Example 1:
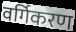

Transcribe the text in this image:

वर्गिकरण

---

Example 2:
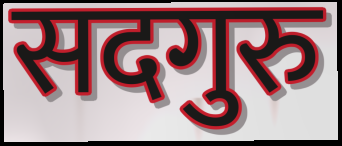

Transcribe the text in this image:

सदगुरु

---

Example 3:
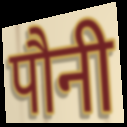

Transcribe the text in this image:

पौनी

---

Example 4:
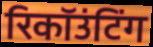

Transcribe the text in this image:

रिकॉउंटिंग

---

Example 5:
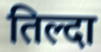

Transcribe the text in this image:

तिल्दा